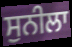
ਸੁਨੀਲਾ